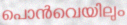
പൊൻവെയിലും